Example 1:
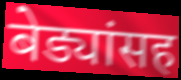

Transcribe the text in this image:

बेड्यांसह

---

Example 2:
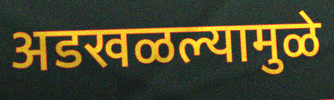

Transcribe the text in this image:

अडखळल्यामुळे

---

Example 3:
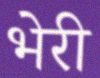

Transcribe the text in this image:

भेरी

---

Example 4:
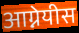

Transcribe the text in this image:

आग्नेयीस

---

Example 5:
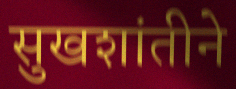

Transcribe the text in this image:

सुखशांतीने